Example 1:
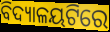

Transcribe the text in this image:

ବିଦ୍ୟାଳୟଟିରେ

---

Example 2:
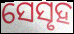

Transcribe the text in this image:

ସେସୃହ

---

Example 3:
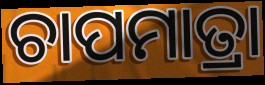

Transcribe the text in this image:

ଚାପମାତ୍ରା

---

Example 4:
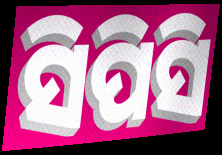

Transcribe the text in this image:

ସିପିସି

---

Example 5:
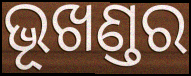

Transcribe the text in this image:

ଭୂଖଣ୍ଡର